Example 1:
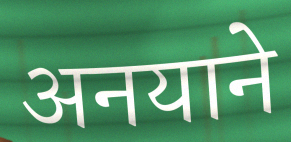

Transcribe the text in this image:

अनयाने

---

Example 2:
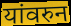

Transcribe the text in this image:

यांवरुन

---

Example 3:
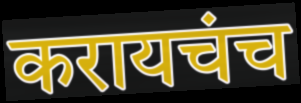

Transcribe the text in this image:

करायचंच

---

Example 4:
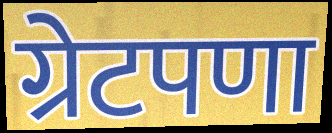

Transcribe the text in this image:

ग्रेटपणा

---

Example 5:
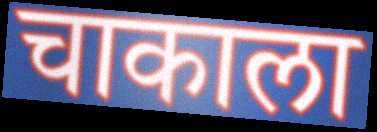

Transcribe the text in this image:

चाकाला